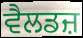
ਵੈਲਡਜ਼